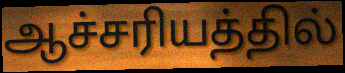
ஆச்சரியத்தில்